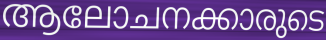
ആലോചനക്കാരുടെ